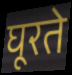
घूरते